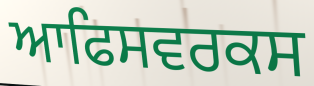
ਆਫਿਸਵਰਕਸ